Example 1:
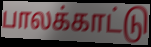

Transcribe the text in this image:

பாலக்காட்டு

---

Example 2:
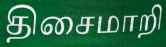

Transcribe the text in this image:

திசைமாறி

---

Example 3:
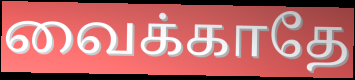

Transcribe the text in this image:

வைக்காதே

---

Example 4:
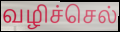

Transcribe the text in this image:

வழிச்செல்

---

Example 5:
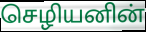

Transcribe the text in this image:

செழியனின்